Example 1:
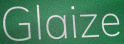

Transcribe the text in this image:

Glaize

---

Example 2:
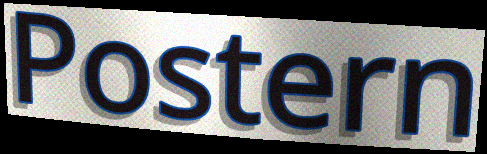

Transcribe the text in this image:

Postern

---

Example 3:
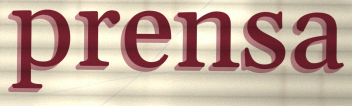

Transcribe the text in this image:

prensa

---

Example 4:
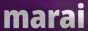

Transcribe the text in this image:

marai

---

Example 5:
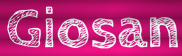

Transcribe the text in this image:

Giosan